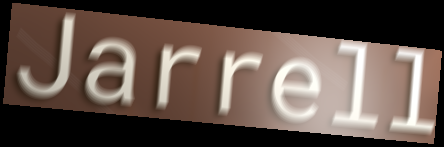
Jarrell